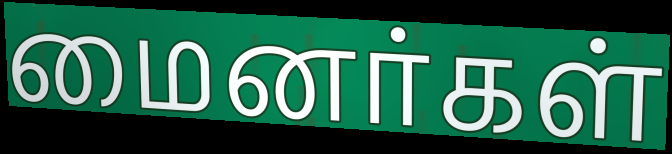
மைனர்கள்